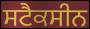
ਸਟੈਕਸੀਨ